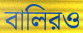
বালিরও